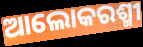
ଆଲୋକରଶ୍ମୀ